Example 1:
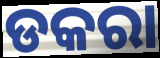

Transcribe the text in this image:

ଡକରା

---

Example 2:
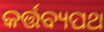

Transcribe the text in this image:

କର୍ତ୍ତବ୍ୟପଥ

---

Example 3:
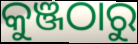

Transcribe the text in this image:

କୁଞ୍ଜଠାରୁ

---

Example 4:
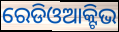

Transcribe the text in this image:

ରେଡିଓଆକ୍ଟିଭ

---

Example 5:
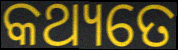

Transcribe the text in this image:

କଥ୍ୟତେ